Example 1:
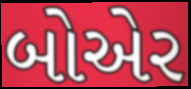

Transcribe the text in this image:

બોએર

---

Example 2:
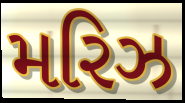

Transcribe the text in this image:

મરિઝ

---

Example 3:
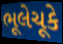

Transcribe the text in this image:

ભૂલેચૂકે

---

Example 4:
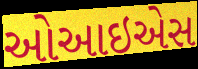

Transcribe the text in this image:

ઓઆઇએસ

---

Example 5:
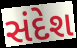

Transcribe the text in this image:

સંદેશ